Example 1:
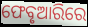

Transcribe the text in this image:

ଫେବୃଆରିରେ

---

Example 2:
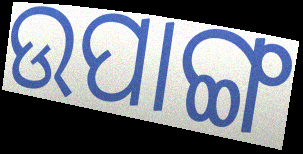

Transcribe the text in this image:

ଉପାଙ୍ଗ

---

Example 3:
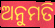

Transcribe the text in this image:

ଅନୁମତି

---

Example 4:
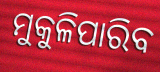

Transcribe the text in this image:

ମୁକୁଳିପାରିବ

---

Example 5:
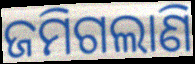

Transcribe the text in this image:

ଜମିଗଲାଣି